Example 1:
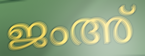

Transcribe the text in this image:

ജംഅ്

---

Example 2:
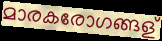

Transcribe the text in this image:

മാരകരോഗങ്ങള്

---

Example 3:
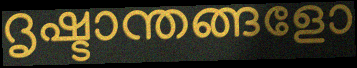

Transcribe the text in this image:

ദൃഷ്ടാന്തങ്ങളോ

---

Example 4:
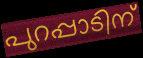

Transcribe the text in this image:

പുറപ്പാടിന്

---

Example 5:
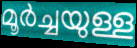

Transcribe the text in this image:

മൂർച്ചയുള്ള